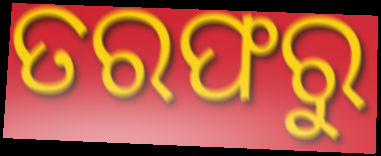
ତରଫରୁ